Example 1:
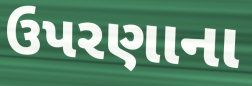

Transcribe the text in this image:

ઉપરણાના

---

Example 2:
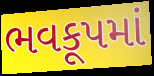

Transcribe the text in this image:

ભવકૂપમાં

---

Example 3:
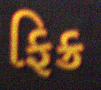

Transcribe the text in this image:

ફિક્ર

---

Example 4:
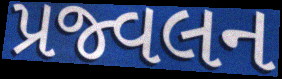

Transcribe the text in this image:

પ્રજ્વલન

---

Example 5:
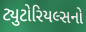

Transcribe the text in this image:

ટ્યુટોરિયલ્સનો